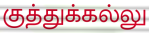
குத்துக்கல்லு